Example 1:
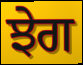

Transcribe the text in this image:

ਝੇਗ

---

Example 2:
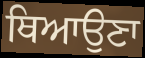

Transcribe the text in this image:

ਥਿਆਉਣਾ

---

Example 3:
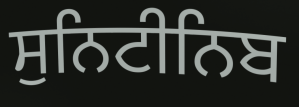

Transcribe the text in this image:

ਸੁਨਿਟੀਨਿਬ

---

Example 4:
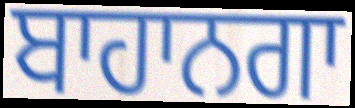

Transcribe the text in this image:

ਬਾਹਾਨਗਾ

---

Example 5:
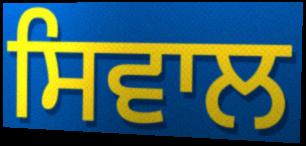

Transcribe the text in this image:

ਸਿਵਾਲ